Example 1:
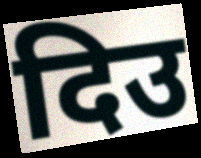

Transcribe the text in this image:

दिउ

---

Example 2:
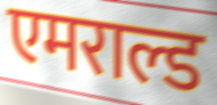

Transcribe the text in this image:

एमराल्ड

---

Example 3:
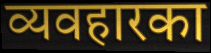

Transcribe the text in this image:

व्यवहारका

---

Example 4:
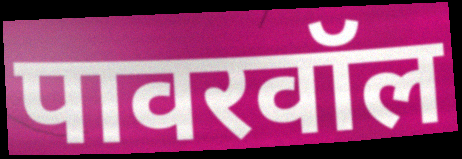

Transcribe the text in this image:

पावरवॉल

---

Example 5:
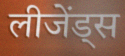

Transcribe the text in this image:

लीजेंड्स